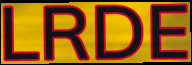
LRDE